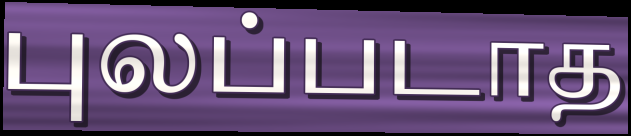
புலப்படாத